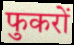
फुकरों